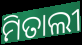
ମିତାଲୀ